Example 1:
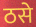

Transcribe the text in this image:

ठसे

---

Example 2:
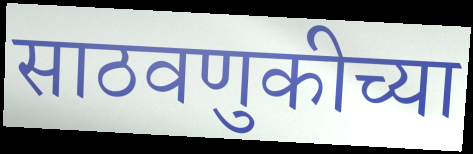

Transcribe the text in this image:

साठवणुकीच्या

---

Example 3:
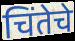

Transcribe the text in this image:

चिंतेचे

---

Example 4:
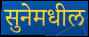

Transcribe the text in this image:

सुनेमधील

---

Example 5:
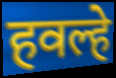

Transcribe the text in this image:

हवल्हे